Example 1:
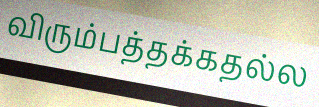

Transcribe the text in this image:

விரும்பத்தக்கதல்ல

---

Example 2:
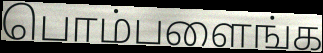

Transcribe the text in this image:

பொம்பளைங்க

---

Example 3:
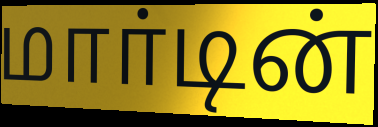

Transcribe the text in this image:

மார்டின்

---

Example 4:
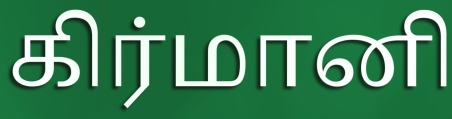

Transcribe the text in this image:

கிர்மானி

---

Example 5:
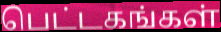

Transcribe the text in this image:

பெட்டகங்கள்